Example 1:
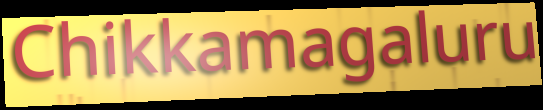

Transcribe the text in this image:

Chikkamagaluru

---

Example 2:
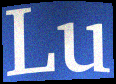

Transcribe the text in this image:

Lu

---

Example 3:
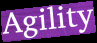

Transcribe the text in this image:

Agility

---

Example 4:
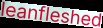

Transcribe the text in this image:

leanfleshed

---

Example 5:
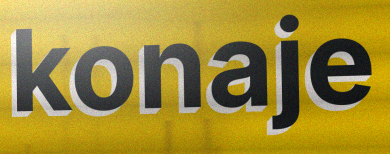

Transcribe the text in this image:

konaje